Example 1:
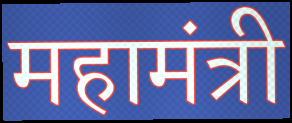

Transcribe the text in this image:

महामंत्री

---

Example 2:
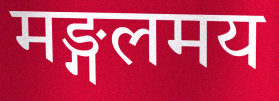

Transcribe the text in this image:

मङ्गलमय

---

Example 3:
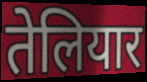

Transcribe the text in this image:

तेलियार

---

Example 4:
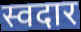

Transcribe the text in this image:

स्वदार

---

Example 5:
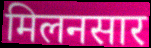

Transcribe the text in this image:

मिलनसार